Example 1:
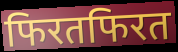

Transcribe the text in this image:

फिरतफिरत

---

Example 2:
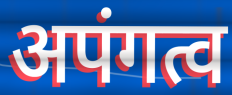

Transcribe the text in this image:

अपंगत्व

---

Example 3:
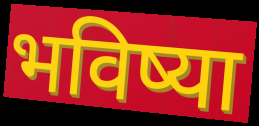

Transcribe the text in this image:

भविष्या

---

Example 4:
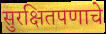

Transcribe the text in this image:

सुरक्षितपणाचे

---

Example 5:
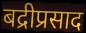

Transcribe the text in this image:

बद्रीप्रसाद